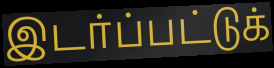
இடர்ப்பட்டுக்